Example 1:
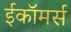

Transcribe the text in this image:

ईकॉमर्स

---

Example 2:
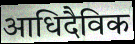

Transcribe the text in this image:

आधिदैविक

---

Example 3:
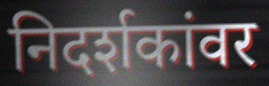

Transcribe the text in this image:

निदर्शकांवर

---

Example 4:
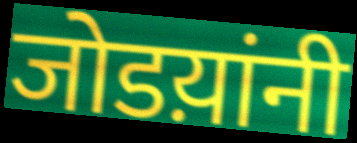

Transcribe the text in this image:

जोडय़ांनी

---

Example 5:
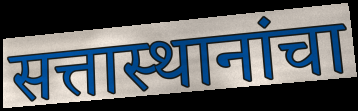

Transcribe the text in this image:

सत्तास्थानांचा